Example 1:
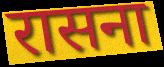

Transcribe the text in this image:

रासना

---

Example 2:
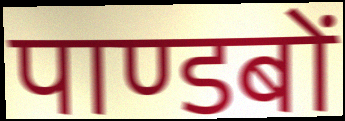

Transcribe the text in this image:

पाण्डबों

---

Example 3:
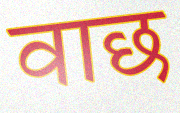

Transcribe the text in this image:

वाछ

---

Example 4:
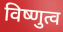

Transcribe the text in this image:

विष्णुत्व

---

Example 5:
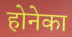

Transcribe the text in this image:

होनेका